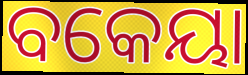
ବକେୟା